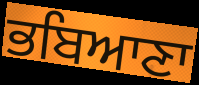
ਭਬਿਆਣਾ